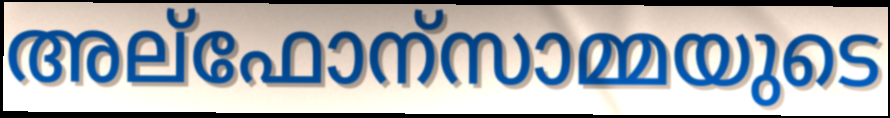
അല്ഫോന്സാമ്മയുടെ